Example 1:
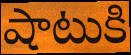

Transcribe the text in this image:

షాటుకి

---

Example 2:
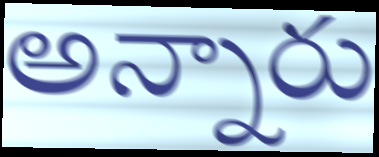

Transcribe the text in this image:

అన్నారు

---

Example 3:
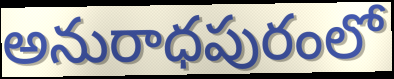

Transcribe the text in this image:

అనురాధపురంలో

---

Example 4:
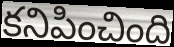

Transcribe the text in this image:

కనిపించింది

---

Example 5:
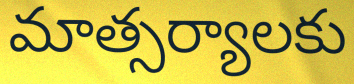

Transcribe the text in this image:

మాత్సర్యాలకు